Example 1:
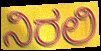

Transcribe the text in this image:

ನಿರಲಿ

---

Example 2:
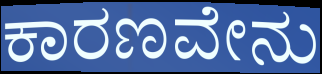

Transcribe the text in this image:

ಕಾರಣವೇನು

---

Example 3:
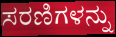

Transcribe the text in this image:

ಸರಣಿಗಳನ್ನು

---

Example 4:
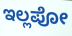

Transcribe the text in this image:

ಇಲ್ಲಪೋ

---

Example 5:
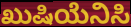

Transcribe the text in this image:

ಖುಷಿಯೆನಿಸಿ